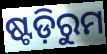
ଷ୍ଟଡ଼ିରୁମ